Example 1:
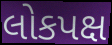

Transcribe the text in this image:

લોકપક્ષ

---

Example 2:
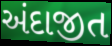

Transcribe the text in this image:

અંદાજીત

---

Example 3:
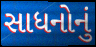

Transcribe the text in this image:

સાધનોનું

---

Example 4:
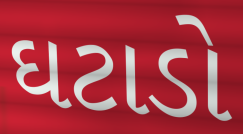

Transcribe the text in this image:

ઘટાડો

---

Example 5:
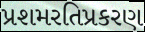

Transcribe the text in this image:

પ્રશમરતિપ્રકરણ